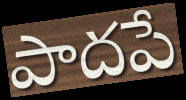
పాదపే